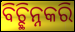
ବିଚ୍ଛିନ୍ନକରି